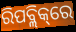
ରିପବ୍ଲିକ୍‌ରେ